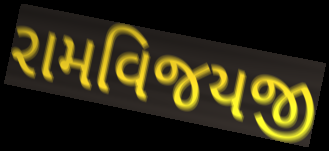
રામવિજયજી